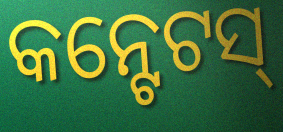
କନ୍ଟେଟସ୍